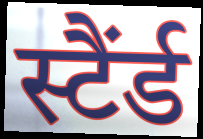
स्टैंर्ड